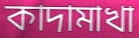
কাদামাখা